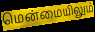
மென்மையிலும்